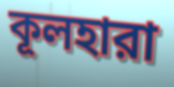
কূলহারা